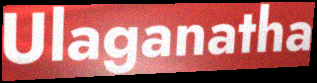
Ulaganatha